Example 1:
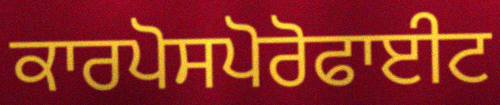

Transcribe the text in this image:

ਕਾਰਪੋਸਪੋਰੋਫਾਈਟ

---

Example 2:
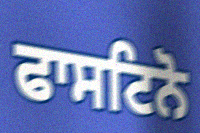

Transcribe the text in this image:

ਫਾਸਟਿਨੋ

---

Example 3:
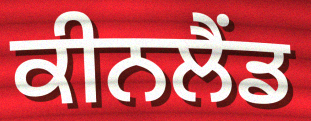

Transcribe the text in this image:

ਕੀਨਲੈਂਡ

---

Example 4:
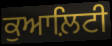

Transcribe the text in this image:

ਕੁਆਲ਼ਿਟੀ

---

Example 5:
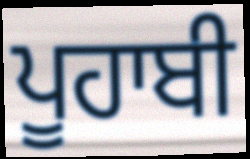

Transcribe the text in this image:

ਪੂਹਾਬੀ